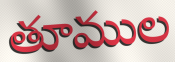
తూముల